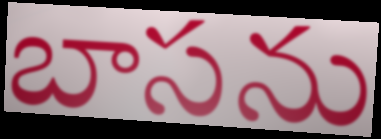
బాసను